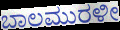
ಬಾಲಮುರಳೀ